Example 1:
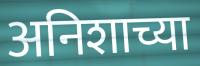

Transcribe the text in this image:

अनिशाच्या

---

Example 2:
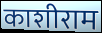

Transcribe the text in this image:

काशीराम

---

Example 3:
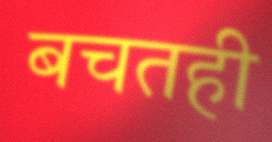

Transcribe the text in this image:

बचतही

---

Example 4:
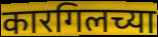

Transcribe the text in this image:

कारगिलच्या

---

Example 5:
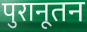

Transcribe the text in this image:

पुरानूतन